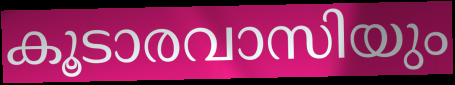
കൂടാരവാസിയും